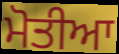
ਮੋਤੀਆ